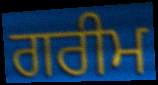
ਗਰੀਮ